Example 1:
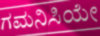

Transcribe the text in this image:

ಗಮನಿಸಿಯೇ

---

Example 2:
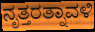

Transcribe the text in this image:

ನೃತ್ತರತ್ನಾವಳಿ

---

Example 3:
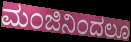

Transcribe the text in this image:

ಮಂಜಿನಿಂದಲೂ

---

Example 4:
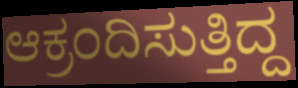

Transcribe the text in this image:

ಆಕ್ರಂದಿಸುತ್ತಿದ್ದ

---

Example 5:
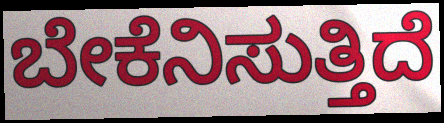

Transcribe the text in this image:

ಬೇಕೆನಿಸುತ್ತಿದೆ